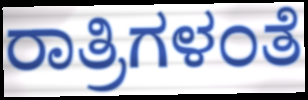
ರಾತ್ರಿಗಳಂತೆ